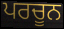
ਪਰਚੂਨ